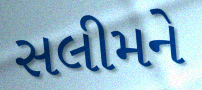
સલીમને